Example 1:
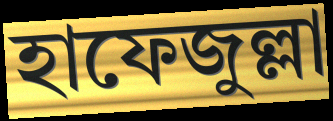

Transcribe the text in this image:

হাফেজুল্লা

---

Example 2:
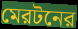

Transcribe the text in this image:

মেরটনের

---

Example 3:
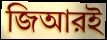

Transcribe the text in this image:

জিআরই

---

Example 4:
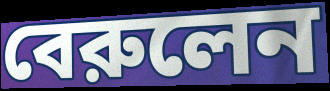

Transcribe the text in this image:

বেরুলেন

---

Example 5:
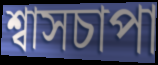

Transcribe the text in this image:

শ্বাসচাপা